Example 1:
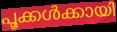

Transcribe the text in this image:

പൂക്കൾക്കായി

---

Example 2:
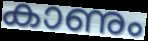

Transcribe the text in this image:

കാണും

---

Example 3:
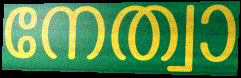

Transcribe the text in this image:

നേത്വാ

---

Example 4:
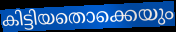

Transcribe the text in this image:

കിട്ടിയതൊക്കെയും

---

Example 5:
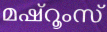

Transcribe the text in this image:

മഷ്റൂംസ്